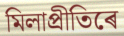
মিলাপ্ৰীতিৰে